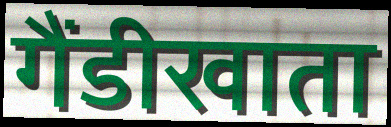
गैंडीखाता